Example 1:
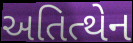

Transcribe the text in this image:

અતિત્થેન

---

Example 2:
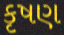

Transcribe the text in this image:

કૃષણ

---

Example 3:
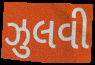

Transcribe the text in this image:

ઝુલવી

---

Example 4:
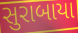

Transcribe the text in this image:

સુરાબાયા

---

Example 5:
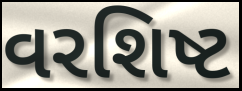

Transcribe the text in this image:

વરશિષ્ટ